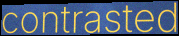
contrasted